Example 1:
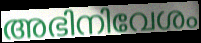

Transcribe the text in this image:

അഭിനിവേശം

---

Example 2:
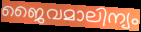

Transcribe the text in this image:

ജൈവമാലിന്യം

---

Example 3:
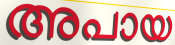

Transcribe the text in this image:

അപായ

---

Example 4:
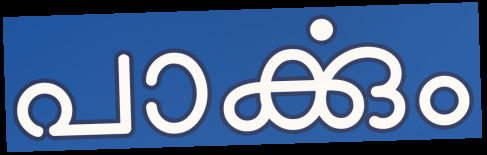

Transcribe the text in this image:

പാൎക്കും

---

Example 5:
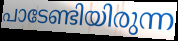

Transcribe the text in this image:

പാടേണ്ടിയിരുന്ന